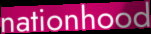
nationhood